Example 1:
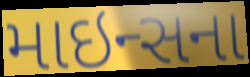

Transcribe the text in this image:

માઇન્સના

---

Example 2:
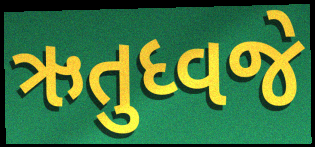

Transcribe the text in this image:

ઋતુધ્વજે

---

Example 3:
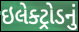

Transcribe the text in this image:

ઇલેક્ટ્રોડનું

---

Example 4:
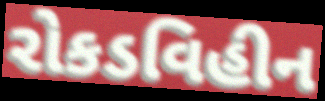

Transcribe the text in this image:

રોકડવિહીન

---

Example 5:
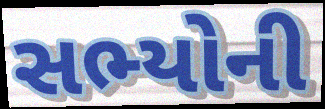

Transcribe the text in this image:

સભ્યોની